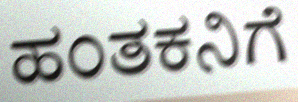
ಹಂತಕನಿಗೆ